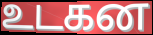
உடகன